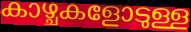
കാഴ്ചകളോടുള്ള